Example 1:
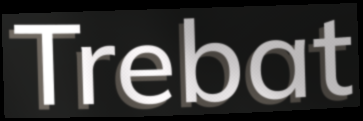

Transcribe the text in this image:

Trebat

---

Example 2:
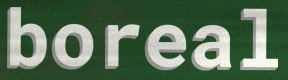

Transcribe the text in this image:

boreal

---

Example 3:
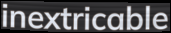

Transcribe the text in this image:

inextricable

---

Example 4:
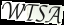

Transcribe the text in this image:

WTSA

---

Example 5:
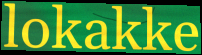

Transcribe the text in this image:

lokakke